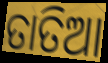
ତାତିଆ